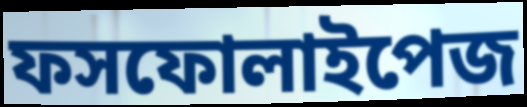
ফসফোলাইপেজ